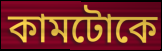
কামটোকে